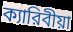
ক্যারিবীয়া